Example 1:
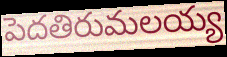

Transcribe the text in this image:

పెదతిరుమలయ్య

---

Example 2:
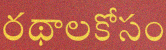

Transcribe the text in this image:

రథాలకోసం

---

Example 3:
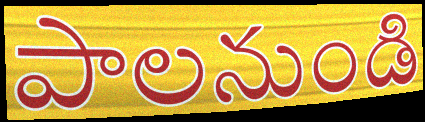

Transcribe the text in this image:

పాలనుండి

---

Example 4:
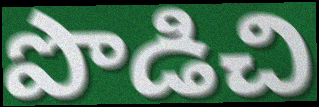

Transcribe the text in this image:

పొడిచి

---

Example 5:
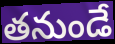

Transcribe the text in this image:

తనుండే